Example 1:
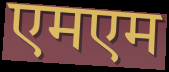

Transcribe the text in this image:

एमएम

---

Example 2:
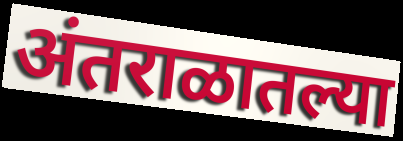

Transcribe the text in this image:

अंतराळातल्या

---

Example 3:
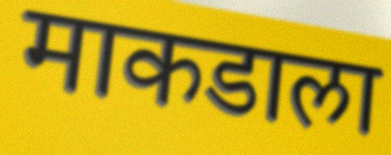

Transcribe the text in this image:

माकडाला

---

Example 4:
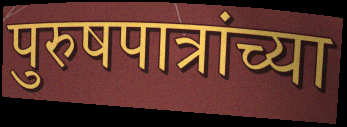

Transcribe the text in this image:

पुरुषपात्रांच्या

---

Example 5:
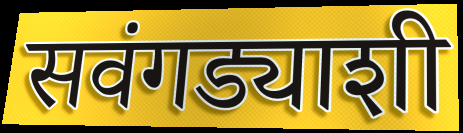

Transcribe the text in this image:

सवंगड्याशी